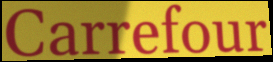
Carrefour